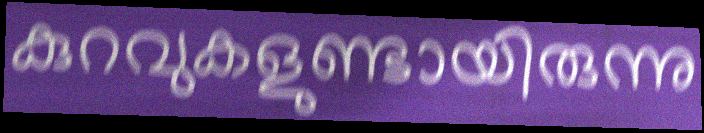
കുറവുകളുണ്ടായിരുന്നു